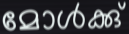
മോൾക്കു്